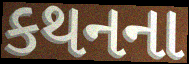
કથનના